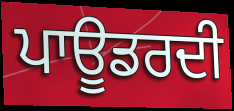
ਪਾਊਡਰਦੀ